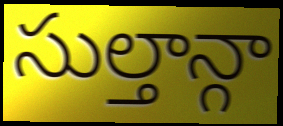
సుల్తాన్గా